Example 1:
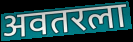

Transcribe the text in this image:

अवतरला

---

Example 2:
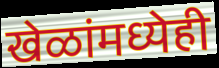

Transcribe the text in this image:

खेळांमध्येही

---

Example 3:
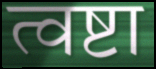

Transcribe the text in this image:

त्वष्टा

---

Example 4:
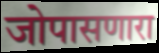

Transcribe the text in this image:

जोपासणारा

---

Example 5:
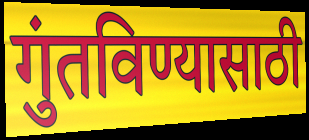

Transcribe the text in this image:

गुंतविण्यासाठी